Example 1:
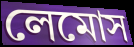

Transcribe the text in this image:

লেমোস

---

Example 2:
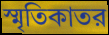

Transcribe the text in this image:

স্মৃতিকাতর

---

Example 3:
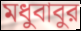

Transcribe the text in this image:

মধুবাবুর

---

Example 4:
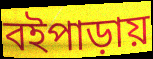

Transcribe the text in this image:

বইপাড়ায়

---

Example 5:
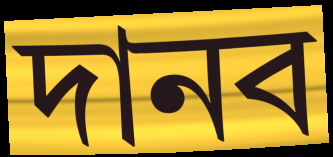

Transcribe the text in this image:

দানব